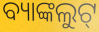
ବ୍ୟାଙ୍କଲୁଟ୍